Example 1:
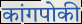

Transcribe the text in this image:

कांगपोकी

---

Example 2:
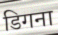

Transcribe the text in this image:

डिगना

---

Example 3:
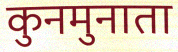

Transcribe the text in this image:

कुनमुनाता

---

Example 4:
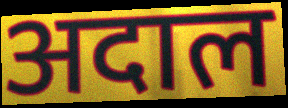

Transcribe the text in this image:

अदाल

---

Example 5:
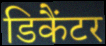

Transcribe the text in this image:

डिकैंटर